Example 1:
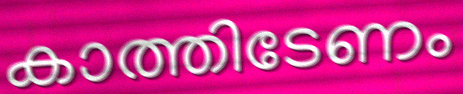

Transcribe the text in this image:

കാത്തിടേണം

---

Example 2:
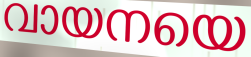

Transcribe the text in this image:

വായനയെ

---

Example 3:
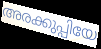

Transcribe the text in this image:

അരക്കുപ്പിയേ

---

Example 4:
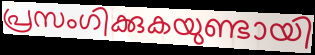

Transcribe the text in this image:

പ്രസംഗിക്കുകയുണ്ടായി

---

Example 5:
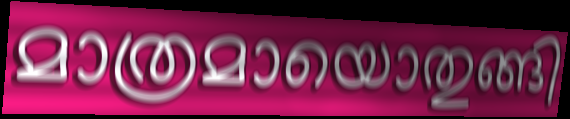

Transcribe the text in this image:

മാത്രമായൊതുങ്ങി